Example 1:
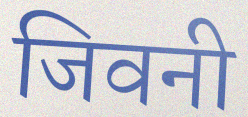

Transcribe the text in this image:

जिवनी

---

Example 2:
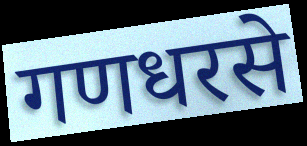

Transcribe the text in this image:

गणधरसे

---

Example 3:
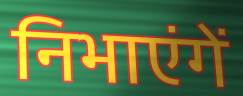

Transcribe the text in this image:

निभाएंगें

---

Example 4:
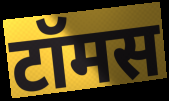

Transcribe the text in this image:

टॉमस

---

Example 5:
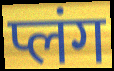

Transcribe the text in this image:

प्लंग